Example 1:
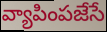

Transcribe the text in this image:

వ్యాపింపజేసే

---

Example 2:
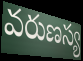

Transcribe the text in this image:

వరుణస్య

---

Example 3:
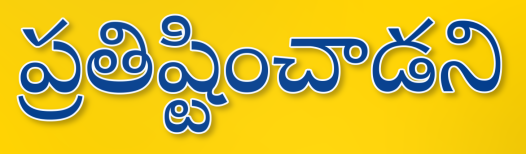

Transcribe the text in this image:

ప్రతిష్టించాడని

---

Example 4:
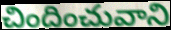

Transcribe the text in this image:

చిందించువాని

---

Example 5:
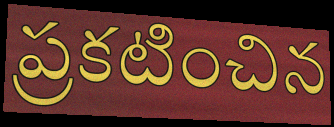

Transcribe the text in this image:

ప్రకటించిన